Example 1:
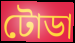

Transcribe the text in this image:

টোডা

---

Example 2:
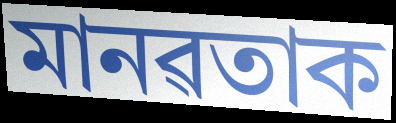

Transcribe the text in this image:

মানৱতাক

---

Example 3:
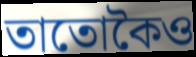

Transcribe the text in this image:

তাতোকৈও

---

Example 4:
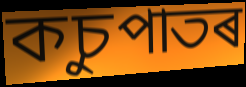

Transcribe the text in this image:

কচুপাতৰ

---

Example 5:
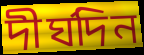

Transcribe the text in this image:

দীৰ্ঘদিন